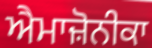
ਐਮਾਜ਼ੋਨੀਕਾ